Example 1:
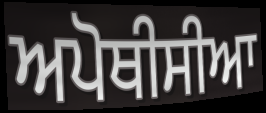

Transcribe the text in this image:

ਅਪੋਥੀਸੀਆ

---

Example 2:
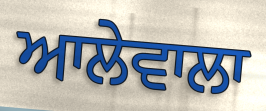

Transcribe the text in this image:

ਆਲੇਵਾਲਾ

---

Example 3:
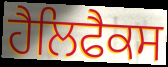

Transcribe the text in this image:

ਹੈਲਿਫੈਕਸ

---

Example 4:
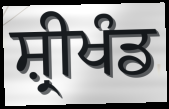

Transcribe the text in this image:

ਸ਼੍ਰੀਖੰਡ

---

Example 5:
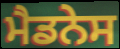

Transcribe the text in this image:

ਮੈਡਨੇਸ